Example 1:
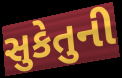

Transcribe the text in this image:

સુકેતુની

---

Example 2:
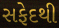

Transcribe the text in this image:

સફેદથી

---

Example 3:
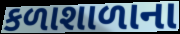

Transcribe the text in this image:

કળાશાળાના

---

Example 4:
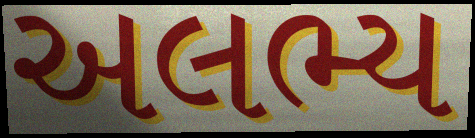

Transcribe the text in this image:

અલભ્ય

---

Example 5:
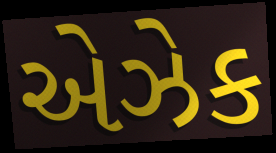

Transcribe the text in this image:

એઝેક